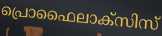
പ്രൊഫൈലാക്സിസ്